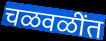
चळवळींत